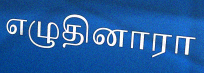
எழுதினாரா